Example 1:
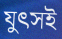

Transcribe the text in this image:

যুৎসই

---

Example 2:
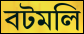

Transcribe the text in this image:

বটমলি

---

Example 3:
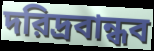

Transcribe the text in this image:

দরিদ্রবান্ধব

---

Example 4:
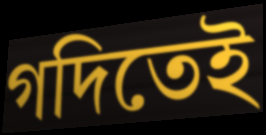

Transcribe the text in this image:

গদিতেই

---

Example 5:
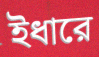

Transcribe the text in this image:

ইধারে